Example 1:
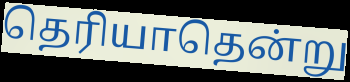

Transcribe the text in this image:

தெரியாதென்று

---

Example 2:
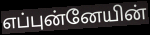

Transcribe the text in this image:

எப்புன்னேயின்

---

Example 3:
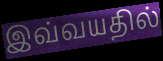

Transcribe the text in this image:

இவ்வயதில்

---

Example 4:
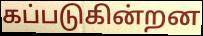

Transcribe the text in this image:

கப்படுகின்றன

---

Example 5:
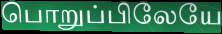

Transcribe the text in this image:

பொறுப்பிலேயே